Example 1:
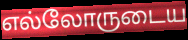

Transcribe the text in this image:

எல்லோருடைய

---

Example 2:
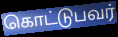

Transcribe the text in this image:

கொட்டுபவர்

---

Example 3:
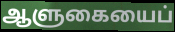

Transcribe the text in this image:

ஆளுகையைப்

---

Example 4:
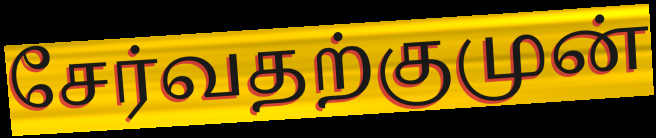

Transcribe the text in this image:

சேர்வதற்குமுன்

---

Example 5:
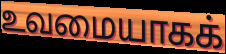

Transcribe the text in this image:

உவமையாகக்